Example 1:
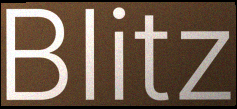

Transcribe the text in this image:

Blitz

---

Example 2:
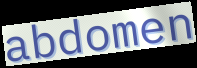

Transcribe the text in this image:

abdomen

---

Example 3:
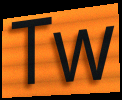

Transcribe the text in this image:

Tw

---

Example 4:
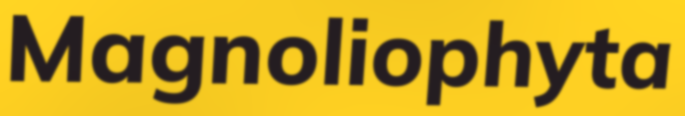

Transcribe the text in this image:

Magnoliophyta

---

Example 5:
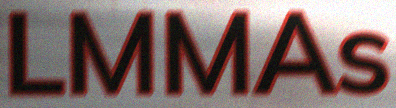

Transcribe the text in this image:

LMMAs